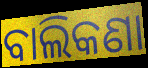
ବାଲିକଣା